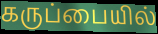
கருப்பையில்